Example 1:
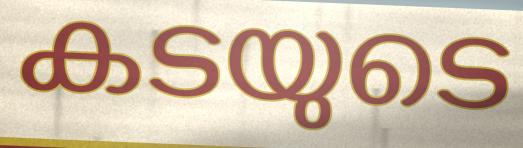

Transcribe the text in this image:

കടയുടെ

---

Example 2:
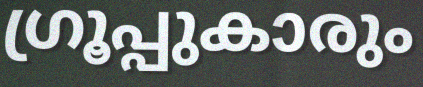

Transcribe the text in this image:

ഗ്രൂപ്പുകാരും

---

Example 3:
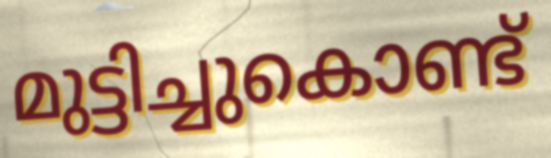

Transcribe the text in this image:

മുട്ടിച്ചുകൊണ്ട്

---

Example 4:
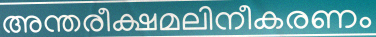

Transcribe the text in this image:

അന്തരീക്ഷമലിനീകരണം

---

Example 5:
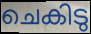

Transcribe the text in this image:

ചെകിടു